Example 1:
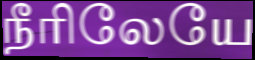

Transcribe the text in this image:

நீரிலேயே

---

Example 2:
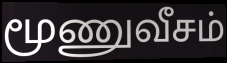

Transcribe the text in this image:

மூணுவீசம்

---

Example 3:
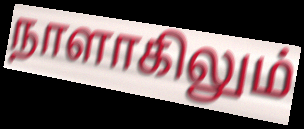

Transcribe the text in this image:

நாளாகிலும்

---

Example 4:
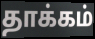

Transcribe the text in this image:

தாக்கம்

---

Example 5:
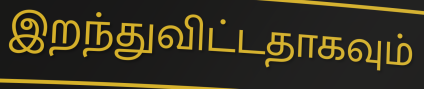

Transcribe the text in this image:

இறந்துவிட்டதாகவும்